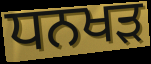
ਧਨਖਡ਼